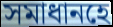
সমাধানহে